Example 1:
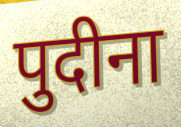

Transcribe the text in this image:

पुदीना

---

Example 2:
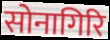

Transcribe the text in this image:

सोनागिरि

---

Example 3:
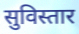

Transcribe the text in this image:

सुविस्तार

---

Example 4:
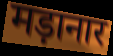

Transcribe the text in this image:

मड़ानार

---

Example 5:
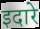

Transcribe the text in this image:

इदारे